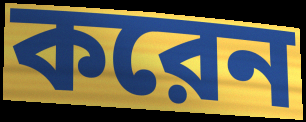
করেন